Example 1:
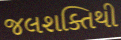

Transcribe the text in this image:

જલશક્તિથી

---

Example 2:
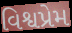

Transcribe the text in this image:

વિશ્વપ્રેમ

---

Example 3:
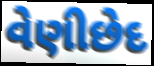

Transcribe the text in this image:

વેણીછેદ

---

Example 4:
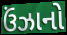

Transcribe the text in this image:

ઉંઝાનો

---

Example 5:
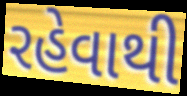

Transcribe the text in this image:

રહેવાથી